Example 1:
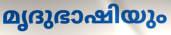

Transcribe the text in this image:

മൃദുഭാഷിയും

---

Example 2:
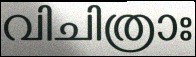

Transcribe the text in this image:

വിചിത്രാഃ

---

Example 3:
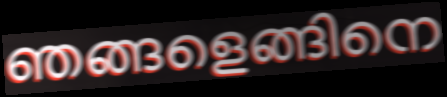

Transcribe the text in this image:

ഞങ്ങളെങ്ങിനെ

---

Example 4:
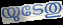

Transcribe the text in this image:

യുടേതു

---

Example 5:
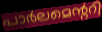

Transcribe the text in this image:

പാർലമെന്ററി